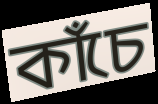
কাঁচে